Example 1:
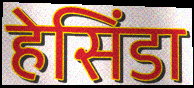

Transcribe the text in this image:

हेसिंडा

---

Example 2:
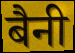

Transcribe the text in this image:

बैनी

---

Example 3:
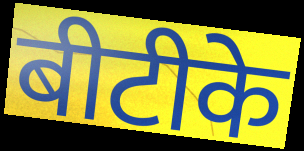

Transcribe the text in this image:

बीटीके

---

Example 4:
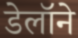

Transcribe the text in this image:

डेलॉने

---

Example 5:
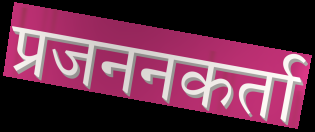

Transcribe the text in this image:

प्रजननकर्ता